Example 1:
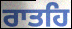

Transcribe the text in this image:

ਰਾਤਹਿ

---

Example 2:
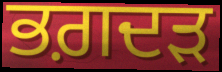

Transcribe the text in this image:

ਭਗ਼ਦੜ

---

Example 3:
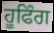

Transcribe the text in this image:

ਹੂਫਿੰਗ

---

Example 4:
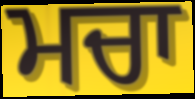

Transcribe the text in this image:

ਮਚਾ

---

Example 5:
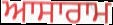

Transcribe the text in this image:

ਆਸਾਰਾਮ